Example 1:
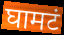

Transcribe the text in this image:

घामटं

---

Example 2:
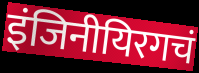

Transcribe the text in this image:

इंजिनीयिरगचं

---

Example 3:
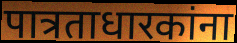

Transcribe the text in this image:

पात्रताधारकांना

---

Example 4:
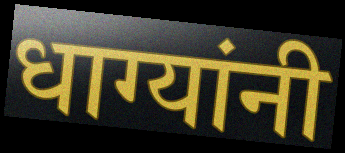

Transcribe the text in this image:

धाग्यांनी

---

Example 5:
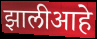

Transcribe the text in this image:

झालीआहे